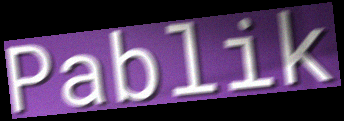
Pablik